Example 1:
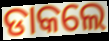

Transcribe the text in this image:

ଡାକଲେ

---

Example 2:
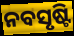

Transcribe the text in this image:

ନବସୃଷ୍ଟି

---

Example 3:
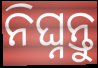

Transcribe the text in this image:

ନିଘ୍ନନ୍ତୁ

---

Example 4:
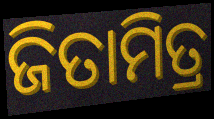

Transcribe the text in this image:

ଜିତାମିତ୍ର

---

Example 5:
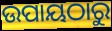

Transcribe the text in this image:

ଉପାୟଠାରୁ